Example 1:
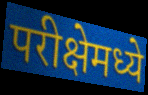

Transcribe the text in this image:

परीक्षेमध्ये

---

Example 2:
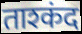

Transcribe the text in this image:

ताश्कंद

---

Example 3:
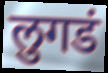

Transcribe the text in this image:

लुगडं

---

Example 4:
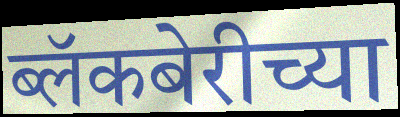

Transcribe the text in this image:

ब्लॅकबेरीच्या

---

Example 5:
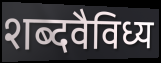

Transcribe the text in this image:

शब्दवैविध्य